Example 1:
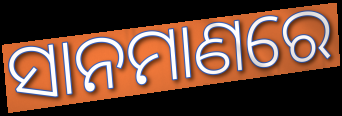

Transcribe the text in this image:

ସାନମାଣରେ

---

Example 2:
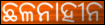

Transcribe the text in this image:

ଛଳନାହୀନ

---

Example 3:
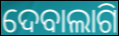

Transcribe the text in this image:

ଦେବାଲାଗି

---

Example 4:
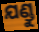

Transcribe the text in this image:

ଯଣ୍ଡୁ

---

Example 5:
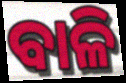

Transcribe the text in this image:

ବାଳି